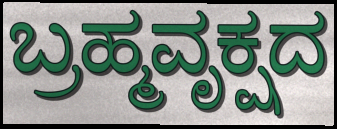
ಬ್ರಹ್ಮವೃಕ್ಷದ